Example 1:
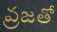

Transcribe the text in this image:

వ్రజతో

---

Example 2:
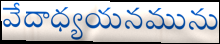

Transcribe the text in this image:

వేదాధ్యయనమును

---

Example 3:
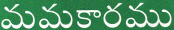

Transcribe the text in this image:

మమకారము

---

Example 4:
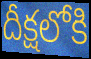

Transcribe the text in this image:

దీక్షలోకి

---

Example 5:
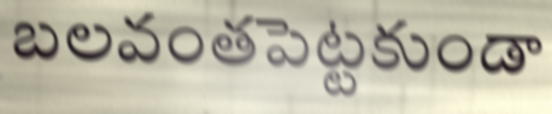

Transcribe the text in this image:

బలవంతపెట్టకుండా